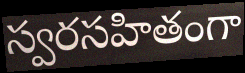
స్వరసహితంగా